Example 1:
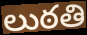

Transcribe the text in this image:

లుఠతి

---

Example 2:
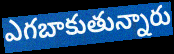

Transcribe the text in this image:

ఎగబాకుతున్నారు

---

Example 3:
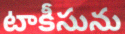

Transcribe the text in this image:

టాకీసును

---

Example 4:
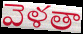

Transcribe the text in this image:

వెళతా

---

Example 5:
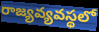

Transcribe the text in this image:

రాజ్యవ్యవస్థలో